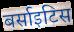
बर्साइटिस